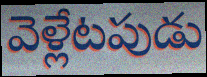
వెళ్లేటపుడు